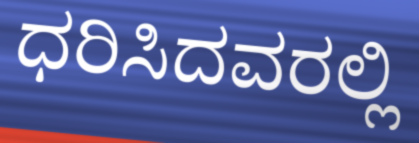
ಧರಿಸಿದವರಲ್ಲಿ